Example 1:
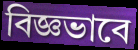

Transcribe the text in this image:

বিজ্ঞভাবে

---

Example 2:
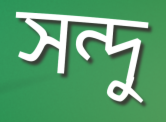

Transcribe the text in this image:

সন্দু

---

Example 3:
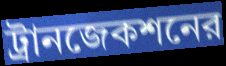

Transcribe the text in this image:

ট্রানজেকশনের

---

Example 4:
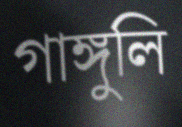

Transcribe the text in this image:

গাঙ্গুলি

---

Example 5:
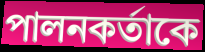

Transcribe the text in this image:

পালনকর্তাকে